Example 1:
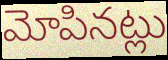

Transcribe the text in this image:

మోపినట్లు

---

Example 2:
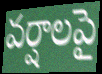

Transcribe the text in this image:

వర్షాలపై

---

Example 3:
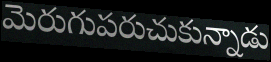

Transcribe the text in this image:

మెరుగుపరుచుకున్నాడు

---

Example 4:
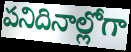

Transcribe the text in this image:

పనిదినాల్లోగా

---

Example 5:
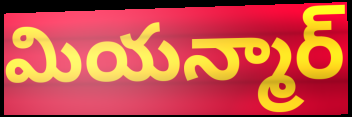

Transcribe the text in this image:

మియన్మార్